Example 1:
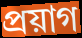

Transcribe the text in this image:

প্ৰয়াগ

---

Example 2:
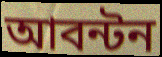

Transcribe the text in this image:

আবন্টন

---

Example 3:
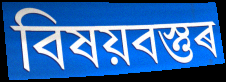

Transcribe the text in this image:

বিষয়বস্তুৰ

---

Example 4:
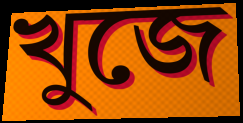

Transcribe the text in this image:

খুজে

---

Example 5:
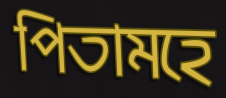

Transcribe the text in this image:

পিতামহে